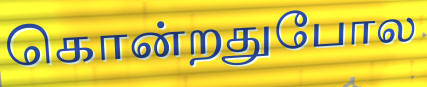
கொன்றதுபோல